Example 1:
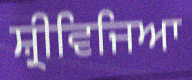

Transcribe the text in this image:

ਸ਼੍ਰੀਵਿਜਿਆ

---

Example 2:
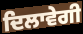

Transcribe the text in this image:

ਦਿਲਾਵੇਗੀ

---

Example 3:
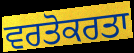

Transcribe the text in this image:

ਵਰਤੋਕਰਤਾ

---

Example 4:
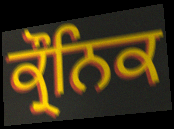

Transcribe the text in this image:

ਕ੍ਰੌਨਿਕ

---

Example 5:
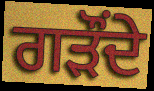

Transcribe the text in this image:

ਗੜੌਂਦੇ